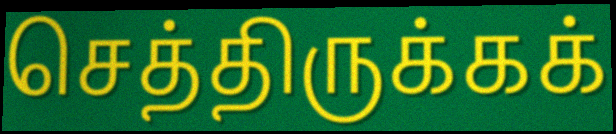
செத்திருக்கக்